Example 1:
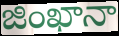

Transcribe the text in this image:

జింఖానా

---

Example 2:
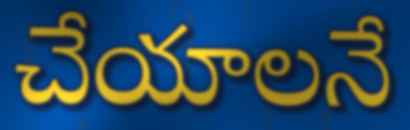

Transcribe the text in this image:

చేయాలనే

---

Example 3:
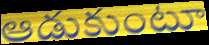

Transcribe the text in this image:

ఆడుకుంటూ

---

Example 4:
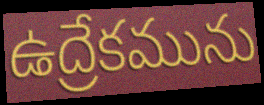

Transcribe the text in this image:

ఉద్రేకమును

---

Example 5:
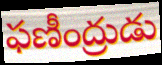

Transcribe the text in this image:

ఫణీంద్రుడు